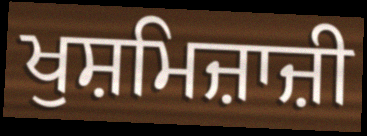
ਖੁਸ਼ਮਿਜ਼ਾਜ਼ੀ